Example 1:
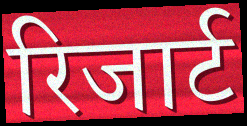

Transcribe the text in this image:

रिजार्ट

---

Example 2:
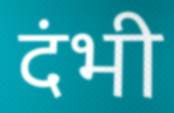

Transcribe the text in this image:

दंभी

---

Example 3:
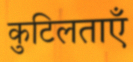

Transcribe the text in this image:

कुटिलताएँ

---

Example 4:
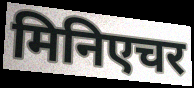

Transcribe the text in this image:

मिनिएचर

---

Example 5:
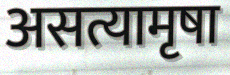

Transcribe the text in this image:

असत्यामृषा